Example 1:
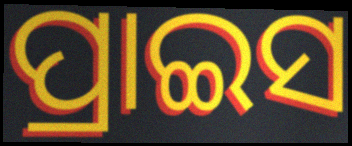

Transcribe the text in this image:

ପ୍ରାଇସ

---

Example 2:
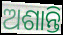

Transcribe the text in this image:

ଅଶାନ୍ତି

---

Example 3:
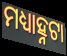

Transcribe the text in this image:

ମଧ୍ୟାହ୍ନଟା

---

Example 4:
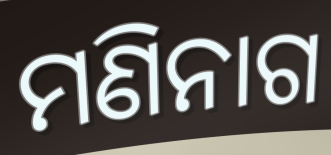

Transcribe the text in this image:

ମଣିନାଗ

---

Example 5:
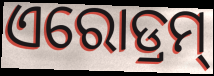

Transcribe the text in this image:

ଏରୋଡ୍ରମ୍